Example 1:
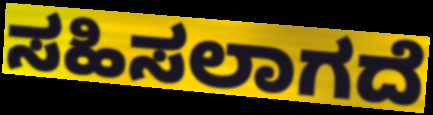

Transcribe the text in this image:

ಸಹಿಸಲಾಗದೆ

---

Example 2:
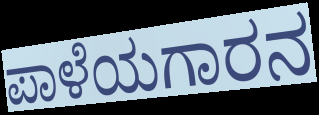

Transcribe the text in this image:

ಪಾಳೆಯಗಾರನ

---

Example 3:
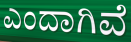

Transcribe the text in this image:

ಎಂದಾಗಿವೆ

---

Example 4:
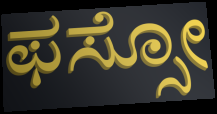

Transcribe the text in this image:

ಫಸ್ಸೋ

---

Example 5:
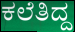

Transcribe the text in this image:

ಕಲೆತಿದ್ದ